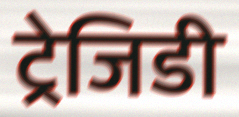
ट्रेजिडी